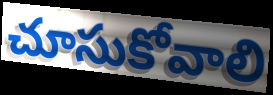
చూసుకోవాలి